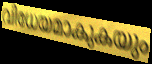
വിധേയമാകുകയും